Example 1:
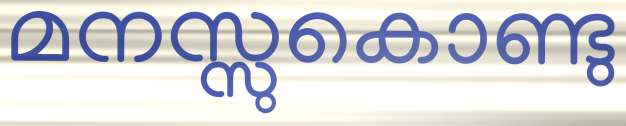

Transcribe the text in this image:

മനസ്സുകൊണ്ടു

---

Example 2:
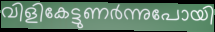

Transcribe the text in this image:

വിളികേട്ടുണർന്നുപോയി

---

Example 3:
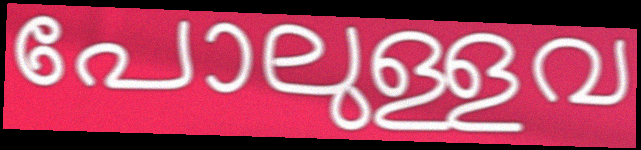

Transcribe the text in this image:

പോലുള്ളവ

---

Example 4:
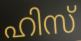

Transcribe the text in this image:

ഹിസ്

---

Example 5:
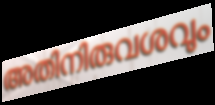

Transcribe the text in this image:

അതിനിരുവശവും